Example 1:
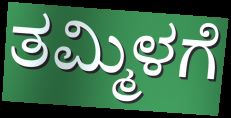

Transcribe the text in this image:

ತಮ್ಮಿಳಗೆ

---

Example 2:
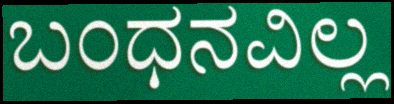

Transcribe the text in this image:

ಬಂಧನವಿಲ್ಲ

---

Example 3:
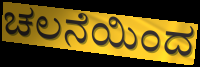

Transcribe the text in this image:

ಚಲನೆಯಿಂದ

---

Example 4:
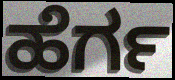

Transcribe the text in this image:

ಹೆರ್ಗ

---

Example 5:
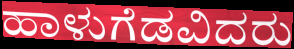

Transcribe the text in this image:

ಹಾಳುಗೆಡವಿದರು